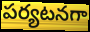
పర్యటనగా